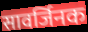
सावर्जिनक